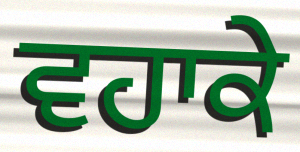
ਵਹਾਕੇ